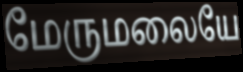
மேருமலையே